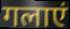
गलाएं